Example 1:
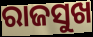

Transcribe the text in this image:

ରାଜସୁଖ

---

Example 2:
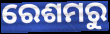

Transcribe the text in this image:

ରେଶମରୁ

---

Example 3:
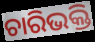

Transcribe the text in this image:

ଚାରିଭକ୍ତି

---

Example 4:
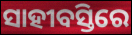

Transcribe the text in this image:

ସାହୀବସ୍ତିରେ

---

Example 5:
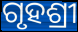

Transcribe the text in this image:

ଗୃହଶ୍ରୀ